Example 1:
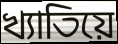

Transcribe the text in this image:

খ্যাতিয়ে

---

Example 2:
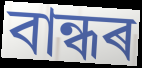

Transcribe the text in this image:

বান্ধৰ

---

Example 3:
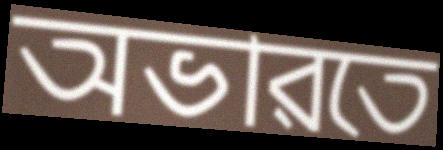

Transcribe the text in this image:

অভাৱতে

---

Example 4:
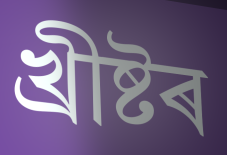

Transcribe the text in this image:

খ্ৰীষ্টৰ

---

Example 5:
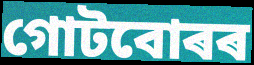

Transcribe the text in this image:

গোটবোৰৰ